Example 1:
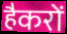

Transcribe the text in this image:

हैकरों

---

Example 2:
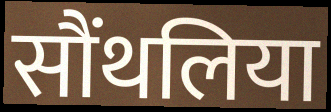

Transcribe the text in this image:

सौंथलिया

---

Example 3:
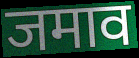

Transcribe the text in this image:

जमाव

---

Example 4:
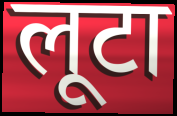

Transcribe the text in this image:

लूटा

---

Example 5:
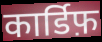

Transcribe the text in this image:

कार्डिफ़